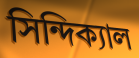
সিন্দিক্যাল